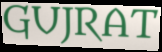
GUJRAT